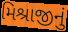
મિશ્રાજીનું